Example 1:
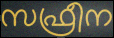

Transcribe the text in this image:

സഫ്രീന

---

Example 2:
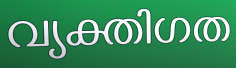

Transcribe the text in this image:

വ്യക്തിഗത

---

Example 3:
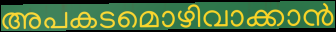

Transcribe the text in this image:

അപകടമൊഴിവാക്കാൻ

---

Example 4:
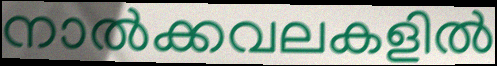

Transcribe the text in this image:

നാൽക്കവലകളിൽ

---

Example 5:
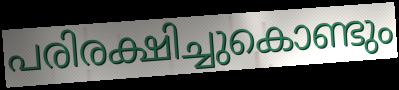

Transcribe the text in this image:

പരിരക്ഷിച്ചുകൊണ്ടും